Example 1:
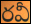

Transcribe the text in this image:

రవీ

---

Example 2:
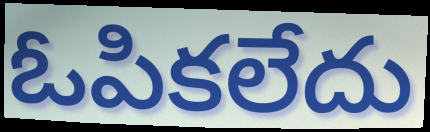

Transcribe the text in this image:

ఓపికలేదు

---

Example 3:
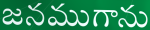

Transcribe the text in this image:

జనముగాను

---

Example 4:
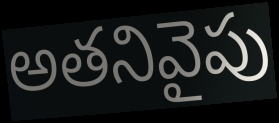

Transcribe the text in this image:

అతనివైపు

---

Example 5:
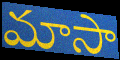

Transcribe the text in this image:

మాసా